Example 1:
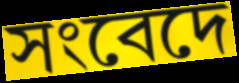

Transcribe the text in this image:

সংবেদে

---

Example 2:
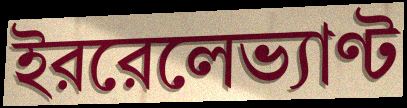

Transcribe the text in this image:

ইররেলেভ্যাণ্ট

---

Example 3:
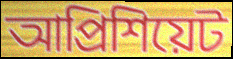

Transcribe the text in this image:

আপ্রিশিয়েট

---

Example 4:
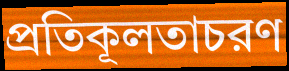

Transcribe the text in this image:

প্রতিকূলতাচরণ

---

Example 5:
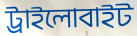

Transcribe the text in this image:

ট্রাইলোবাইট